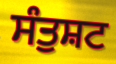
ਸੰਤੁਸ਼ਟ